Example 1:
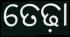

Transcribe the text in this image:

ତେଢ଼ା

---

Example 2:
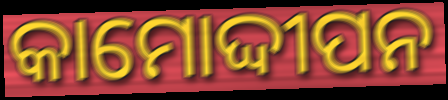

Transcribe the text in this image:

କାମୋଦ୍ଦୀପନ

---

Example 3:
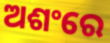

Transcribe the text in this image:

ଅଶଂରେ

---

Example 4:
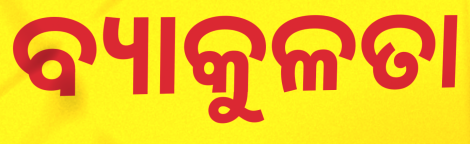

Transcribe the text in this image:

ବ୍ୟାକୁଳତା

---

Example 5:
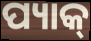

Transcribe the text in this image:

ପ୍ୟାକ୍